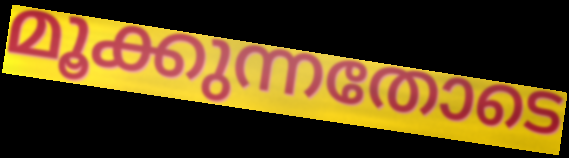
മൂക്കുന്നതോടെ